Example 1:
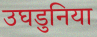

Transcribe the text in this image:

उघडुनिया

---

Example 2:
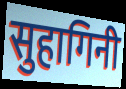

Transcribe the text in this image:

सुहागिनी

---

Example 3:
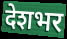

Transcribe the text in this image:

देशभर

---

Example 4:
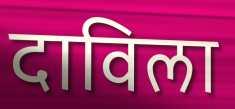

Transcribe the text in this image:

दाविला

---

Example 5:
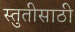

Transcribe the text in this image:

स्तुतीसाठी